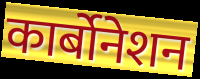
कार्बोनेशन